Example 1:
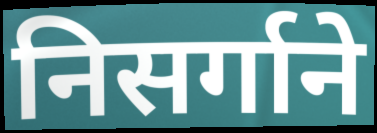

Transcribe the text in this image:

निसर्गाने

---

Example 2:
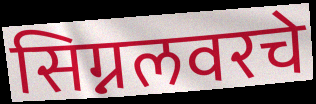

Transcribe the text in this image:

सिग्नलवरचे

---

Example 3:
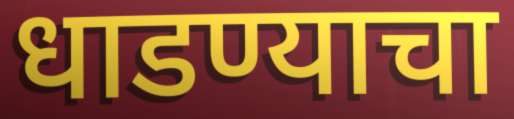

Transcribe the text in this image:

धाडण्याचा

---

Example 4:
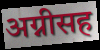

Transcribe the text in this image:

अग्नीसह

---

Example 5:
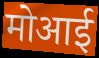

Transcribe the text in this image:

मोआई